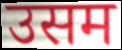
उसम